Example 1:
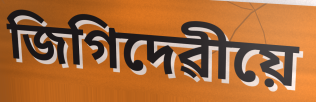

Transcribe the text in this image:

জিগিদেৱীয়ে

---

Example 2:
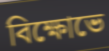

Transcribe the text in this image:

বিক্ষোভে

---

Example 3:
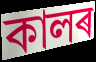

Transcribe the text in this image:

কালৰ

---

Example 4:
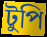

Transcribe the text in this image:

টুপি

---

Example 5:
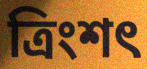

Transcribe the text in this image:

ত্ৰিংশৎ